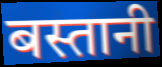
बस्तानी